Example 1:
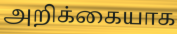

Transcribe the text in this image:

அறிக்கையாக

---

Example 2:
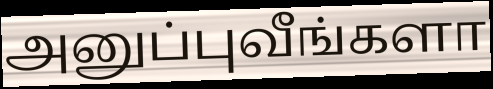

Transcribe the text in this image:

அனுப்புவீங்களா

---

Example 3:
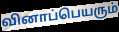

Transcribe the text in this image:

வினாப்பெயரும்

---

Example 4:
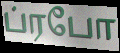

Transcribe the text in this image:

ப்ரபோ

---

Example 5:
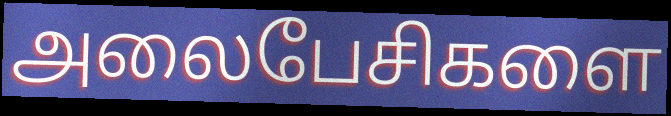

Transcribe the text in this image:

அலைபேசிகளை